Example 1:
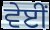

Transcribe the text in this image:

ਵੇਈਂ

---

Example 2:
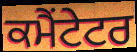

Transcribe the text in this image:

ਕਮੈਂਟੇਟਰ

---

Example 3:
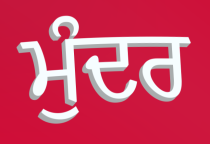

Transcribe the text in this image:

ਮੁੰਦਰ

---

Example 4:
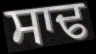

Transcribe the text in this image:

ਸਾਢ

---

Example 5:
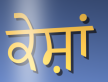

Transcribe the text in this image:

ਕੇਸ਼ਾਂ